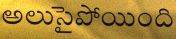
అలుసైపోయింది